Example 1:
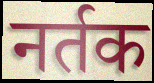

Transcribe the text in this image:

नर्तक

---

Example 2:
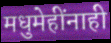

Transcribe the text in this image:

मधुमेहींनाही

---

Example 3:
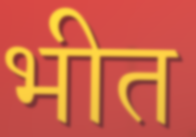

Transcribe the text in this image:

भीत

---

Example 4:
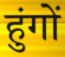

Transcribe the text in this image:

हुंगों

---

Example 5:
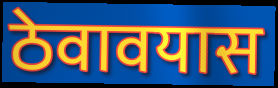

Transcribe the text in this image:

ठेवावयास